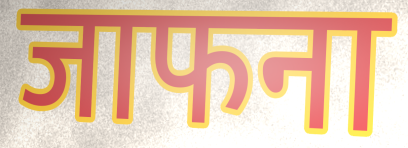
जाफना